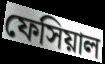
ফেসিয়াল